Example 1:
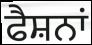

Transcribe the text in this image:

ਫੈਸ਼ਨਾਂ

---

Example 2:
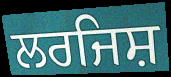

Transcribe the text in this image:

ਲਰਜਿਸ਼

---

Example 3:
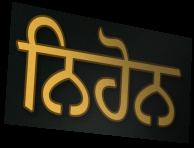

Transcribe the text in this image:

ਨਿਹੋਨ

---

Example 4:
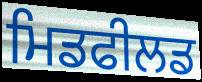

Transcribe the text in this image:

ਮਿਡਫੀਲਡ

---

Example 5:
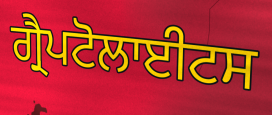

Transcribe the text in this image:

ਗ੍ਰੈਪਟੋਲਾਈਟਸ